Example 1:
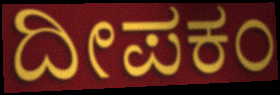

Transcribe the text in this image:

ದೀಪಕಂ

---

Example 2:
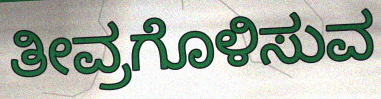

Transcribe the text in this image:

ತೀವ್ರಗೊಳಿಸುವ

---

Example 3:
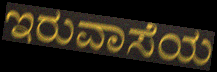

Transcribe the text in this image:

ಇರುವಾಸೆಯ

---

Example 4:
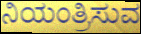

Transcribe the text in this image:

ನಿಯಂತ್ರಿಸುವ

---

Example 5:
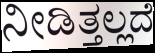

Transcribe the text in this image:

ನೀಡಿತ್ತಲ್ಲದೆ